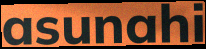
asunahi